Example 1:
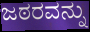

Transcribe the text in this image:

ಜಠರವನ್ನು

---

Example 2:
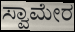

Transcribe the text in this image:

ಸ್ವಾಮೇರ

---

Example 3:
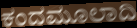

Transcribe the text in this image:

ಕಂದಮೂಲಾದಿ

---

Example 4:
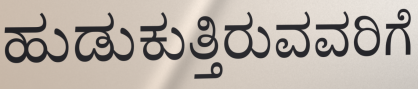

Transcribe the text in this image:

ಹುಡುಕುತ್ತಿರುವವರಿಗೆ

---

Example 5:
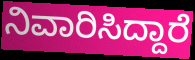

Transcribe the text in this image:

ನಿವಾರಿಸಿದ್ದಾರೆ